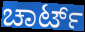
ಚಾರ್ಟ್